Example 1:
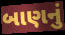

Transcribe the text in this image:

બાણનું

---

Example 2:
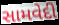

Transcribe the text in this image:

સામવેદી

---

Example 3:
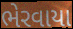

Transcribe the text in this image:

ભેરવાયા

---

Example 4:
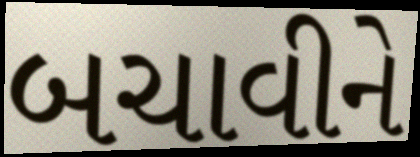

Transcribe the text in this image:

બચાવીને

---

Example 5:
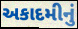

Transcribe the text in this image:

અકાદમીનું